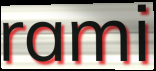
rami